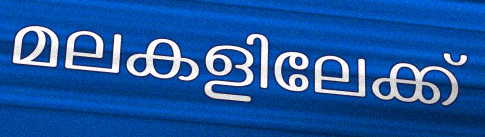
മലകളിലേക്ക്